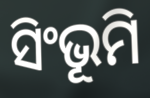
ସିଂଭୂମି